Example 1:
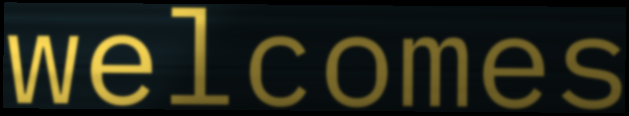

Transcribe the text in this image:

welcomes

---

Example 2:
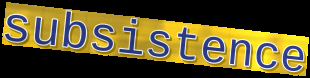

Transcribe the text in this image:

subsistence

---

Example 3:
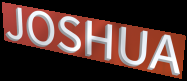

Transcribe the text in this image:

JOSHUA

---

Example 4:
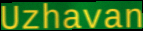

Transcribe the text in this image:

Uzhavan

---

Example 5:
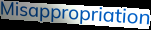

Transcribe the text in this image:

Misappropriation